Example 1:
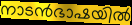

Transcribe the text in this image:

നാടൻഭാഷയിൽ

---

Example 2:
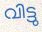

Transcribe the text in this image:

വിട്ടു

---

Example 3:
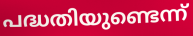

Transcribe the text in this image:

പദ്ധതിയുണ്ടെന്ന്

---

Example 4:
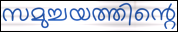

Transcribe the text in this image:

സമുച്ചയത്തിന്റെ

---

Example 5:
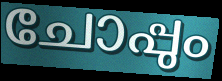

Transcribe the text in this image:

ചോപ്പും